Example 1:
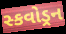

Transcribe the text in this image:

સ્કવોડ્રન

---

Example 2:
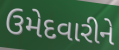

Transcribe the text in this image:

ઉમેદવારીને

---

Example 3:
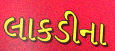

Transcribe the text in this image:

લાકડીના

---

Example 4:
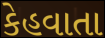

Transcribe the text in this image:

કેહવાતા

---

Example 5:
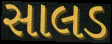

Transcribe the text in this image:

સાલડ